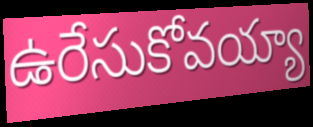
ఉరేసుకోవయ్యా